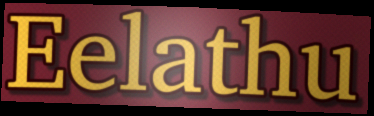
Eelathu